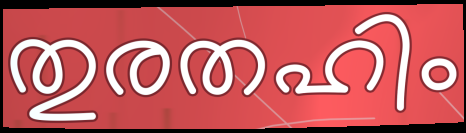
തുരതഹിം